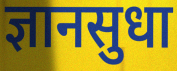
ज्ञानसुधा